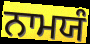
ਨਾਮਯੰ